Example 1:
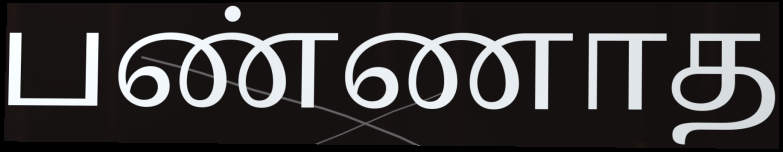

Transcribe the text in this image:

பண்ணாத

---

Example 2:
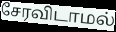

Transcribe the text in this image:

சேரவிடாமல்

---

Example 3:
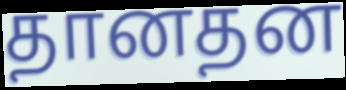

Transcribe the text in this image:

தானதன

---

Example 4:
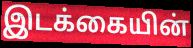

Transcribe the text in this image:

இடக்கையின்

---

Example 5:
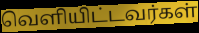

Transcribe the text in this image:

வெளியிட்டவர்கள்